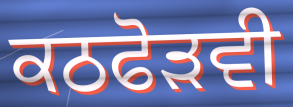
ਕਠਫੋੜਵੀ